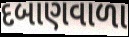
દબાણવાળા